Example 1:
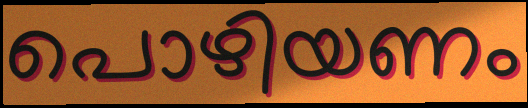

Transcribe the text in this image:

പൊഴിയണം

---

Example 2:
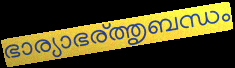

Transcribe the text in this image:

ഭാര്യാഭര്ത്തൃബന്ധം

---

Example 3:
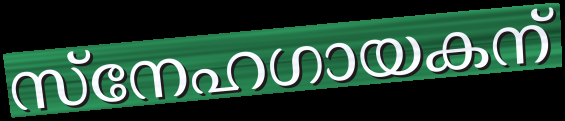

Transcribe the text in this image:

സ്നേഹഗായകന്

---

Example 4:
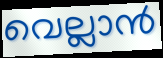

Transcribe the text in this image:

വെല്ലാൻ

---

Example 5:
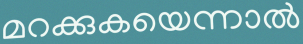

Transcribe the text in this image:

മറക്കുകയെന്നാൽ